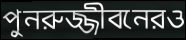
পুনরুজ্জীবনেরও